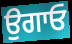
ਉਗਾਓ